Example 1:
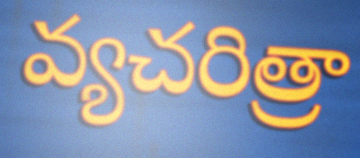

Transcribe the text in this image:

వ్యచరిత్రా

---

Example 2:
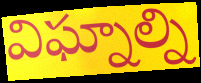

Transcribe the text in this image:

విఘ్నాల్ని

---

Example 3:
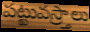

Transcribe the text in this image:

పట్టువస్ర్తాలు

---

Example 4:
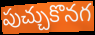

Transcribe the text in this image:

పుచ్చుకొనగ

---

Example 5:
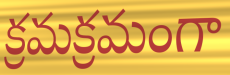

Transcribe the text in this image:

క్రమక్రమంగా